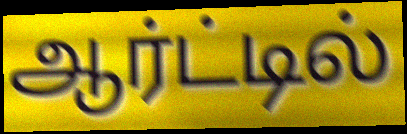
ஆர்ட்டில்